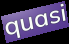
quasi